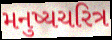
મનુષ્યચરિત્ર